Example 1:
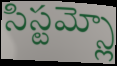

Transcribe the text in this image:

సిస్టమ్స్లో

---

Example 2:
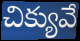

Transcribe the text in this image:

చిక్యువే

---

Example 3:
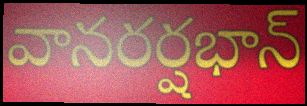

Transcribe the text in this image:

వానరర్షభాన్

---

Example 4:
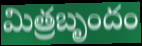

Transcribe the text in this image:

మిత్రబృందం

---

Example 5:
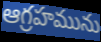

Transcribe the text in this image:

ఆగ్రహమును